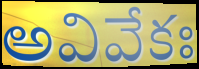
అవివేకః